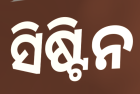
ସିଷ୍ଟିନ